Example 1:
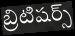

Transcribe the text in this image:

బ్రిటిషర్స్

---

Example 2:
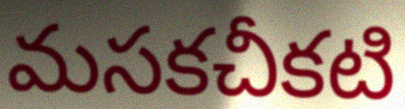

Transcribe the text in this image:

మసకచీకటి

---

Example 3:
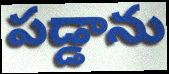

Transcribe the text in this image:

పడ్డాను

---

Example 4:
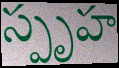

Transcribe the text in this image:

స్పృహ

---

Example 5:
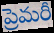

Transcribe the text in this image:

ప్రెమరీ